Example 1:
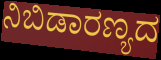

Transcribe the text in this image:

ನಿಬಿಡಾರಣ್ಯದ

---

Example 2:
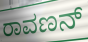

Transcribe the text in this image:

ರಾವಣನ್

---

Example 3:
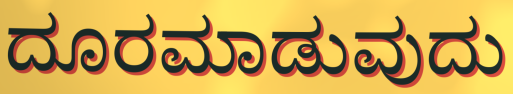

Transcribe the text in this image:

ದೂರಮಾಡುವುದು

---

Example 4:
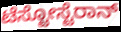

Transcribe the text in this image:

ಟೆಸ್ಟೋಸ್ಟೆರಾನ್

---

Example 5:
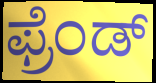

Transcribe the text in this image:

ಫ್ರೆಂಡ್